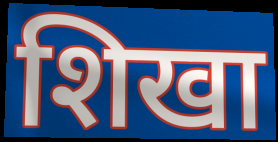
शिखा